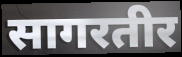
सागरतीर